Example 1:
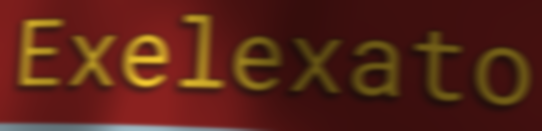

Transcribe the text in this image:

Exelexato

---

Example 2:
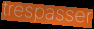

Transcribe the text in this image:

trespasser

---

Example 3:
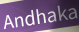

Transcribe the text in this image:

Andhaka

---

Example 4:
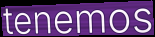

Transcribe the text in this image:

tenemos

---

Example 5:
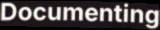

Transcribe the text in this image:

Documenting